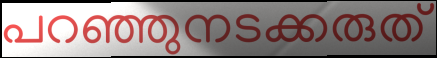
പറഞ്ഞുനടക്കരുത്